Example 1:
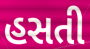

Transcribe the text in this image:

હસતી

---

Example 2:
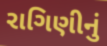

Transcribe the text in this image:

રાગિણીનું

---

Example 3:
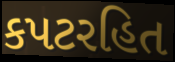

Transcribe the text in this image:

કપટરહિત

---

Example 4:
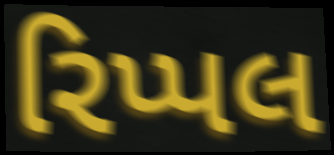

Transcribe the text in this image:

રિપ્પલ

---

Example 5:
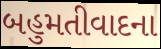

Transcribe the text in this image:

બહુમતીવાદના